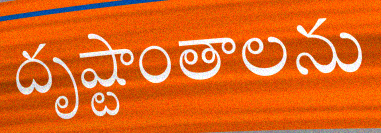
దృష్టాంతాలను